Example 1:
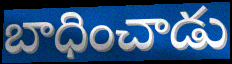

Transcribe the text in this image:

బాధించాడు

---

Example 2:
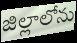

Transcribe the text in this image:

జిల్లాలోను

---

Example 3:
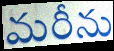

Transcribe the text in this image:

మరీను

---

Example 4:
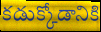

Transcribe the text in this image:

కడుక్కోడానికి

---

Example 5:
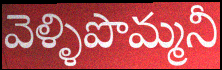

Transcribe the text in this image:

వెళ్ళిపొమ్మనీ